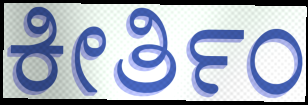
ಕೀರ್ತಿಂ